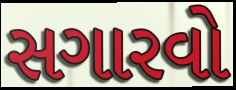
સગારવો